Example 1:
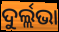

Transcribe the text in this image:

ଦୁର୍ଲ୍ଲଭା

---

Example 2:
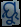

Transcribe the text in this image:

ୟୁ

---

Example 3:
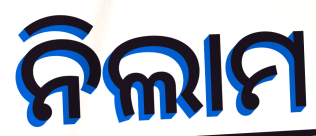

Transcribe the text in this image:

ନିଲାମ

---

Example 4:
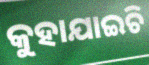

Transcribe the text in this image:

କୁହାଯାଇଚି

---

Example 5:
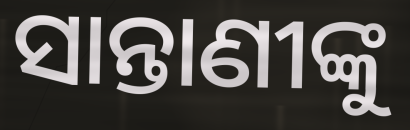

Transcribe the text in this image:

ସାନ୍ତାଣୀଙ୍କୁ